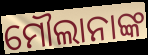
ମୌଲାନାଙ୍କ